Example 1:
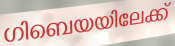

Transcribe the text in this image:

ഗിബെയയിലേക്ക്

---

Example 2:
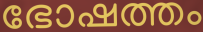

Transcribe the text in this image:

ഭോഷത്തം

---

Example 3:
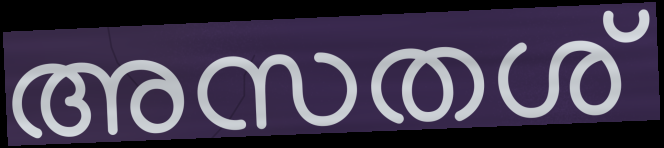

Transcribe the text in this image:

അസതശ്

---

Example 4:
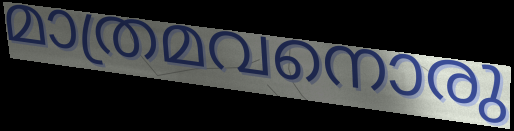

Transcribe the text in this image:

മാത്രമവനൊരു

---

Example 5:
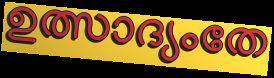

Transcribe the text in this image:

ഉത്സാദ്യംതേ